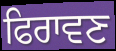
ਫਿਰਾਵਣ